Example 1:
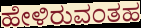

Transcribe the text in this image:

ಹೇಳಿರುವಂತಹ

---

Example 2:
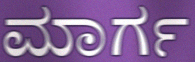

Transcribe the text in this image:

ಮಾರ್ಗ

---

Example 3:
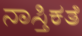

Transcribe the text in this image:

ನಾಸ್ತಿಕತೆ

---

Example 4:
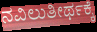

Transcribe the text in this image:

ನವಿಲುತೀರ್ಥಕ್ಕೆ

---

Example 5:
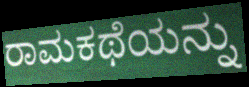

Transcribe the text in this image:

ರಾಮಕಥೆಯನ್ನು